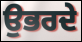
ਉਭਰਦੇ